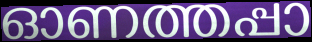
ഓണത്തപ്പാ